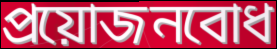
প্ৰয়োজনবোধ